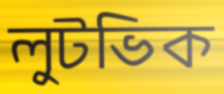
লুটভিক